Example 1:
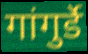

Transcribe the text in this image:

गांगुर्डे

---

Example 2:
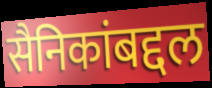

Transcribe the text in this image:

सैनिकांबद्दल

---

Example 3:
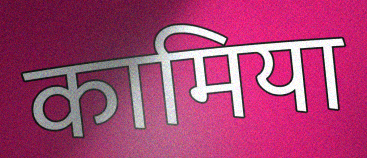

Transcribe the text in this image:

कामिया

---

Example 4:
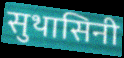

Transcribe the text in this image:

सुथासिनी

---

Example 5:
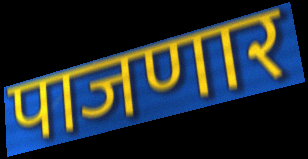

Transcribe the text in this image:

पाजणार